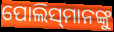
ପୋଲିସ୍‌ମାନଙ୍କୁ